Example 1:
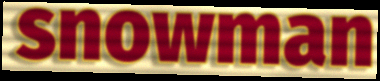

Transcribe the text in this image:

snowman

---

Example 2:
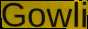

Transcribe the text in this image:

Gowli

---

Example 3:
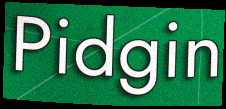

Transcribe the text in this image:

Pidgin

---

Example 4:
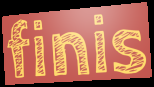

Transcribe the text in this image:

finis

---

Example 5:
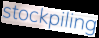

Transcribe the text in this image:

stockpiling